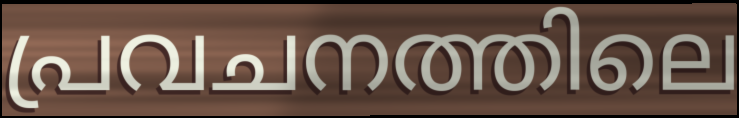
പ്രവചനത്തിലെ